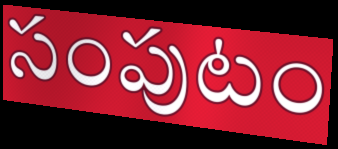
సంపుటం